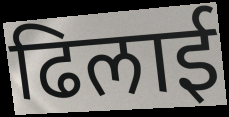
ढिलाई